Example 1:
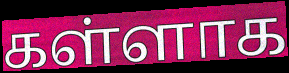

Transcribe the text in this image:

கள்ளாக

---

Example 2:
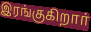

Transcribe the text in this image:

இரங்குகிறார்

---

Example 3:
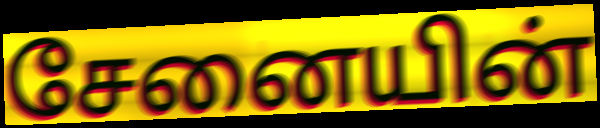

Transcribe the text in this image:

சேனையின்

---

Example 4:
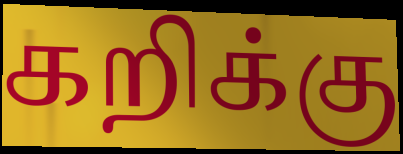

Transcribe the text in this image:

கறிக்கு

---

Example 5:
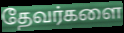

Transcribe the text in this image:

தேவர்களை